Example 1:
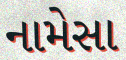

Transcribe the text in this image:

નામેસા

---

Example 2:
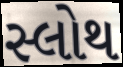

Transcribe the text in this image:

સ્લોથ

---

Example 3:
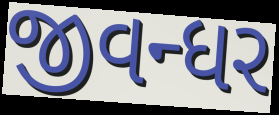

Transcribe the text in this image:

જીવન્ધર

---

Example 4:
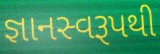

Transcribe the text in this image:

જ્ઞાનસ્વરૂપથી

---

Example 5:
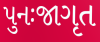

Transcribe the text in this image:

પુનઃજાગૃત